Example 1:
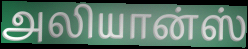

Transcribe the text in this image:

அலியான்ஸ்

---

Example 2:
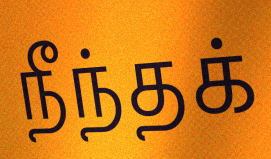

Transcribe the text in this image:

நீந்தக்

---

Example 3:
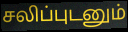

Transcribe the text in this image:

சலிப்புடனும்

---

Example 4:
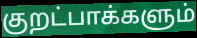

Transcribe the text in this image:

குறட்பாக்களும்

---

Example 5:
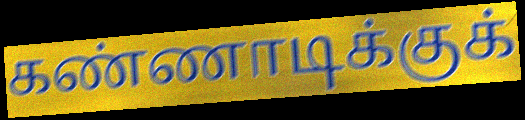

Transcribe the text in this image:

கண்ணாடிக்குக்